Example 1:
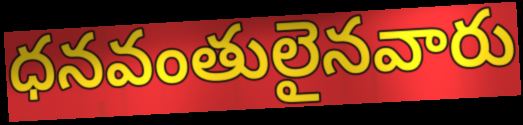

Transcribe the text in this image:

ధనవంతులైనవారు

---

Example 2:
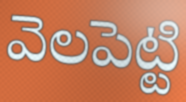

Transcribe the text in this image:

వెలపెట్టి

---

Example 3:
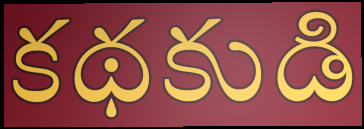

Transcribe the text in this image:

కథకుడి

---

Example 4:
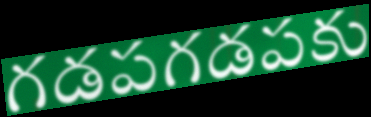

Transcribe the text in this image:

గడపగడపకు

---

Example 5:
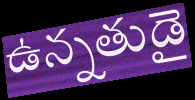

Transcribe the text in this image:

ఉన్నతుడై